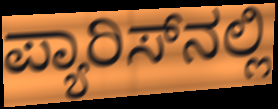
ಪ್ಯಾರಿಸ್‌ನಲ್ಲಿ